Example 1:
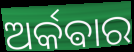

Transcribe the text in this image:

ଅର୍କଵାର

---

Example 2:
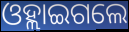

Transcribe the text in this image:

ଓହ୍ଲାଇଗଲେ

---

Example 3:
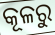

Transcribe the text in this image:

କୂଳରୁ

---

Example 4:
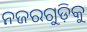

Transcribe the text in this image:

ନଜରଗୁଡ଼ିକୁ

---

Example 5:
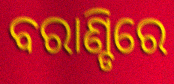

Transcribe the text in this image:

ବରାଣ୍ଡିରେ